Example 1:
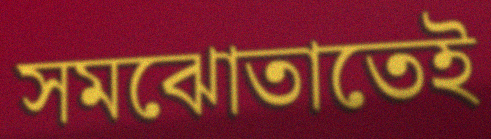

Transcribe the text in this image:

সমঝোতাতেই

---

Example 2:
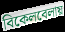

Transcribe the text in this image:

বিকেলবেলায়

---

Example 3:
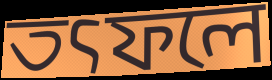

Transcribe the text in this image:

তৎফলে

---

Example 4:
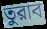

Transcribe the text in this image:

তুরাব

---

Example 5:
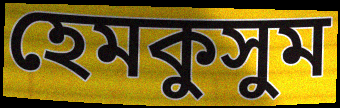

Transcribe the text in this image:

হেমকুসুম